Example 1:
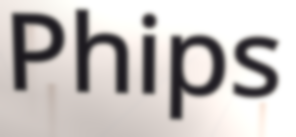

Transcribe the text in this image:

Phips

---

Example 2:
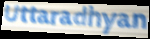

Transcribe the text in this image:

Uttaradhyan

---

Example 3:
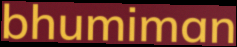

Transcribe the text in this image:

bhumiman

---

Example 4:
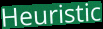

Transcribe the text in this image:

Heuristic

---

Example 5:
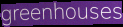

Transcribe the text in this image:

greenhouses